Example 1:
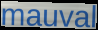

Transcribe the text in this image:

mauval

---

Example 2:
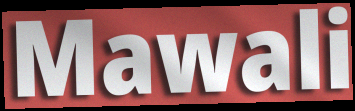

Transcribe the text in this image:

Mawali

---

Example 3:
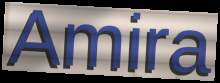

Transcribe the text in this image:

Amira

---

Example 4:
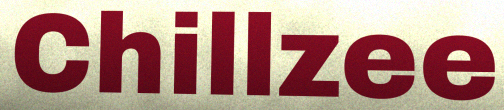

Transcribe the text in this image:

Chillzee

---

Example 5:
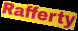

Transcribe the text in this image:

Rafferty